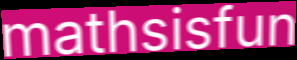
mathsisfun